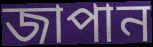
জাপান